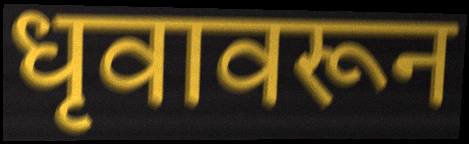
धृवावरून